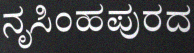
ನೃಸಿಂಹಪುರದ